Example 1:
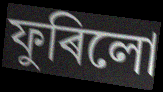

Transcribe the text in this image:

ফুৰিলো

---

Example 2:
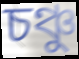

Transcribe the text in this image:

চঞ্চু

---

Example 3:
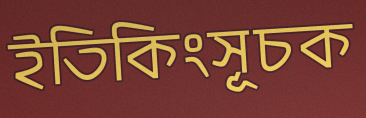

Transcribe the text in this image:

ইতিকিংসূচক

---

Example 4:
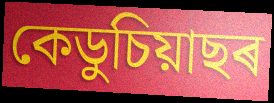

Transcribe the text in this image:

কেডুচিয়াছৰ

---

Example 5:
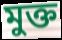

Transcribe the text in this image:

মুক্ত